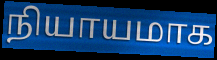
நியாயமாக